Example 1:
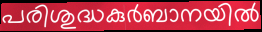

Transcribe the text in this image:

പരിശുദ്ധകുർബാനയിൽ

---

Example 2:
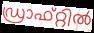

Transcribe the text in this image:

ഡ്രാഫ്റ്റിൽ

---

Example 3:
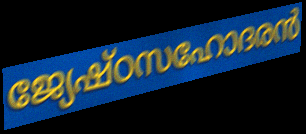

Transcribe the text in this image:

ജ്യേഷ്ഠസഹോദരൻ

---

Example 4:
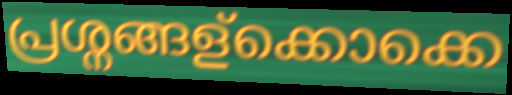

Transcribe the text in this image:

പ്രശ്നങ്ങള്ക്കൊക്കെ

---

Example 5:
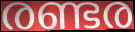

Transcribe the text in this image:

രണ്ടര